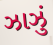
ઝાઝું